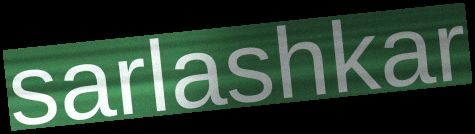
sarlashkar